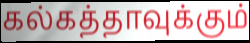
கல்கத்தாவுக்கும்